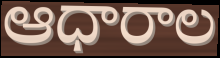
ఆధారాల